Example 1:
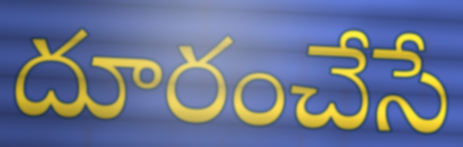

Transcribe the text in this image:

దూరంచేసే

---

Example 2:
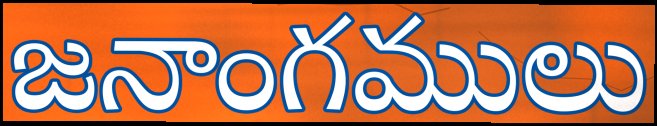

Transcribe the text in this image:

జనాంగములు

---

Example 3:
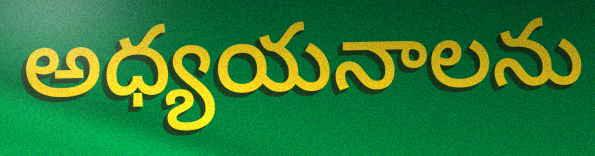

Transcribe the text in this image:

అధ్యయనాలను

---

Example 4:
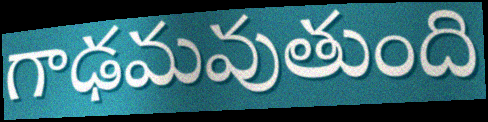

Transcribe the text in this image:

గాఢమవుతుంది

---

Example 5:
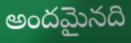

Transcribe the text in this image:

అందమైనది